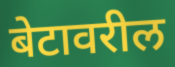
बेटावरील